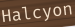
Halcyon